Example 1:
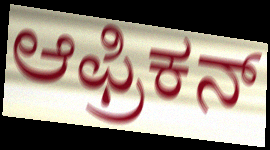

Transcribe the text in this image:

ಆಫ್ರಿಕನ್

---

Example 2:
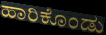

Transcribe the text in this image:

ಹಾರಿಕೊಂಡು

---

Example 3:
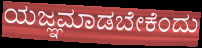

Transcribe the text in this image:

ಯಜ್ಞಮಾಡಬೇಕೆಂದು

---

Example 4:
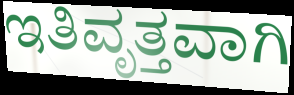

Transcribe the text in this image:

ಇತಿವೃತ್ತವಾಗಿ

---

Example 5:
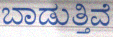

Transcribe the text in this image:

ಬಾಡುತ್ತಿವೆ